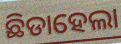
ଛିଡାହେଲା